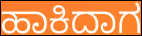
ಹಾಕಿದಾಗ